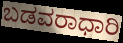
ಬಡವರಾಧಾರಿ